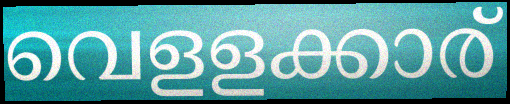
വെളളക്കാര്